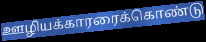
ஊழியக்காரரைக்கொண்டு